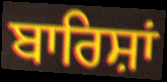
ਬਾਰਿਸ਼ਾਂ